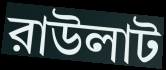
রাউলাট